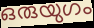
ഒരുയുഗം